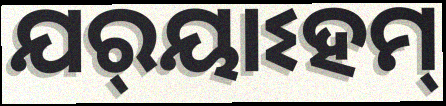
ଯର୍‌ୟାଽହମ୍